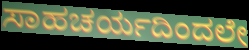
ಸಾಹಚರ್ಯದಿಂದಲೇ